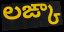
లఙ్కా